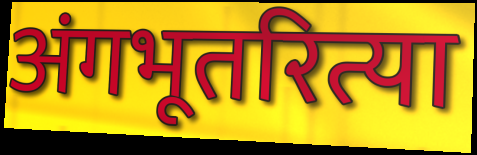
अंगभूतरित्या